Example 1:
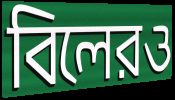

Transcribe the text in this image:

বিলেরও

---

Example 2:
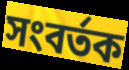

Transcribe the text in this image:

সংবর্তক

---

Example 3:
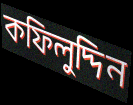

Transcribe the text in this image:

কফিলুদ্দিন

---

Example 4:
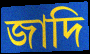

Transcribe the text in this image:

জাদি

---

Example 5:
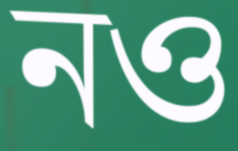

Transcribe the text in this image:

নও